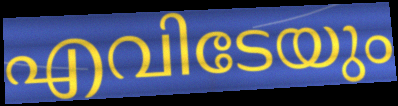
എവിടേയും